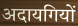
अदायगियों